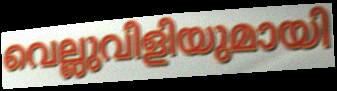
വെല്ലുവിളിയുമായി